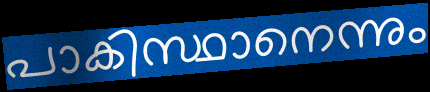
പാകിസ്ഥാനെന്നും